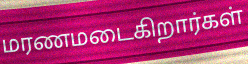
மரணமடைகிறார்கள்